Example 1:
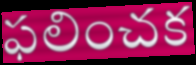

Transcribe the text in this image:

ఫలించక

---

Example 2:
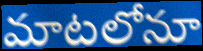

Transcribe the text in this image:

మాటలోనూ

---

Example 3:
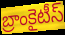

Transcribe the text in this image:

బ్రాంకైటీస్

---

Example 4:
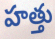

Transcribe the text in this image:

హత్తు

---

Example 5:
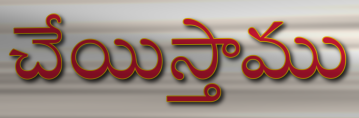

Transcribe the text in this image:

చేయిస్తాము